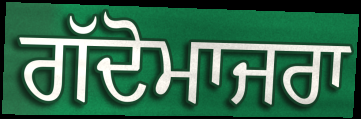
ਗੱਦੋਮਾਜਰਾ